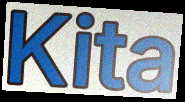
Kita